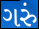
ગરું